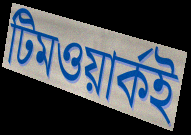
টিমওয়ার্কই